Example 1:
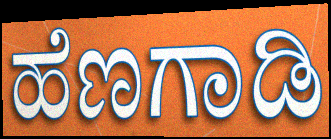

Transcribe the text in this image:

ಹೆಣಗಾಡಿ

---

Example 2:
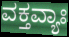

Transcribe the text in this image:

ವಕ್ತವ್ಯಾಃ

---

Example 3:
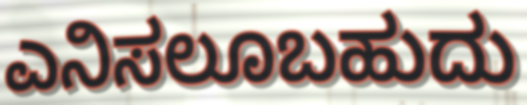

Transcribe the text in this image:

ಎನಿಸಲೂಬಹುದು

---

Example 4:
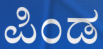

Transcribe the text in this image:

ಪಿಂಡ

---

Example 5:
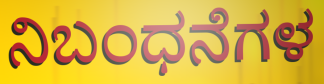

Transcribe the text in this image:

ನಿಬಂಧನೆಗಳ